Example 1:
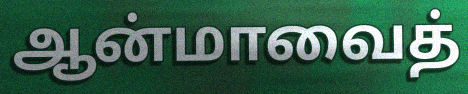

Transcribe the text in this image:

ஆன்மாவைத்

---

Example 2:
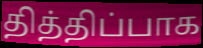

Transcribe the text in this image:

தித்திப்பாக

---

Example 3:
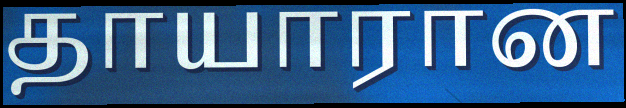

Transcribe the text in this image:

தாயாரான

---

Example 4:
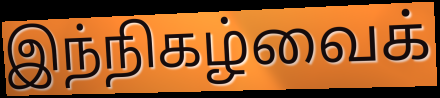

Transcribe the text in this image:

இந்நிகழ்வைக்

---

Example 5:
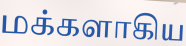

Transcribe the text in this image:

மக்களாகிய